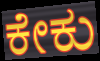
ಕೇಕು